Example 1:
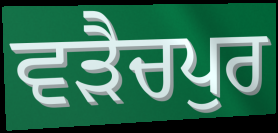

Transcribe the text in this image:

ਵੜੈਚਪੁਰ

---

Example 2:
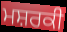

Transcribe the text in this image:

ਮਸ਼ਰਕੀ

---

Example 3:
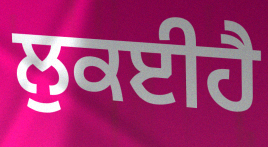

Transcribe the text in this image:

ਲੁਕਈਹੈ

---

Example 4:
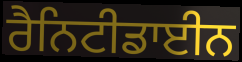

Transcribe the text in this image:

ਰੈਨਿਟੀਡਾਈਨ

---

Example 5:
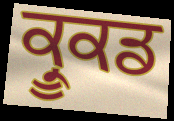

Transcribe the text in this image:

ਕ੍ਰੂਕਡ